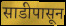
साडीपासून